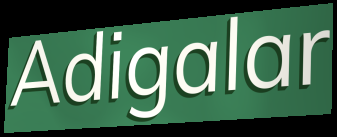
Adigalar